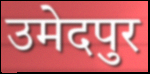
उमेदपुर